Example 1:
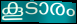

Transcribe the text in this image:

കൂടാരം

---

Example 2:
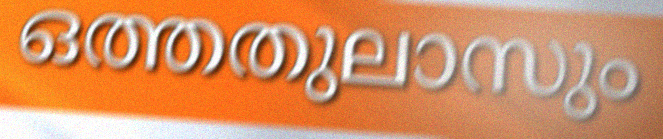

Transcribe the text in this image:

ഒത്തതുലാസും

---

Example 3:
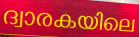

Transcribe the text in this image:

ദ്വാരകയിലെ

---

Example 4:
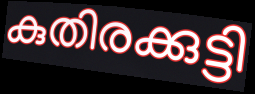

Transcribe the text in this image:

കുതിരക്കുട്ടി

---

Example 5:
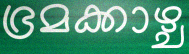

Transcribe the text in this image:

ഭ്രമക്കാഴ്ച